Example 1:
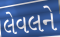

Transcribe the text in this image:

લેવલને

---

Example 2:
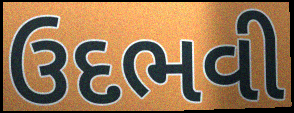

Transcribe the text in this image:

ઉદભવી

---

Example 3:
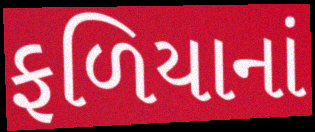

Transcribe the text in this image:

ફળિયાનાં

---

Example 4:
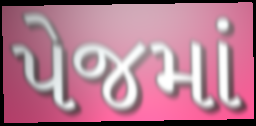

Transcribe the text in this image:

પેજમાં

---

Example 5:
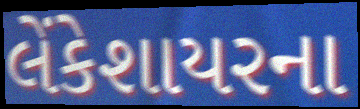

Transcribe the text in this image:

લેંકેશાયરના